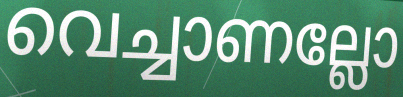
വെച്ചാണല്ലോ